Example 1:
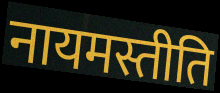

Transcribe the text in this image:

नायमस्तीति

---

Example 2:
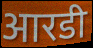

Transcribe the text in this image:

आरडी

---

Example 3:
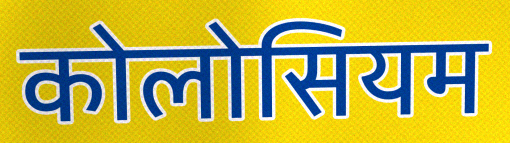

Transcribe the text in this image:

कोलोसियम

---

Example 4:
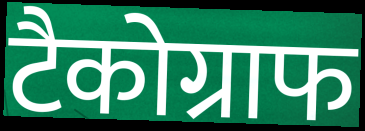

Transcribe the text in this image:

टैकोग्राफ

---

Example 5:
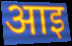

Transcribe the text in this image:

आइ